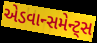
એડવાન્સમેન્ટ્સ